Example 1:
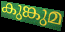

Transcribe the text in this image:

കുങ്കുമ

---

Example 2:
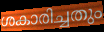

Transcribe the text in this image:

ശകാരിച്ചതും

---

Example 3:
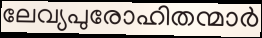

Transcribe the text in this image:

ലേവ്യപുരോഹിതന്മാർ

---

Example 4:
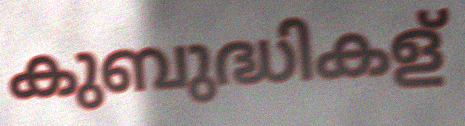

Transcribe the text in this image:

കുബുദ്ധികള്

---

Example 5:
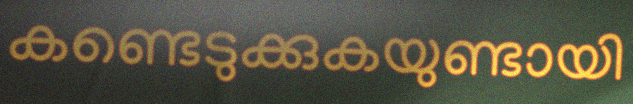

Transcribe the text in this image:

കണ്ടെടുക്കുകയുണ്ടായി